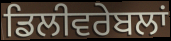
ਡਿਲੀਵਰੇਬਲਾਂ